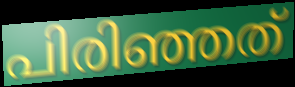
പിരിഞ്ഞത്